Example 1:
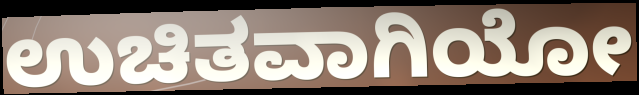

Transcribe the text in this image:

ಉಚಿತವಾಗಿಯೋ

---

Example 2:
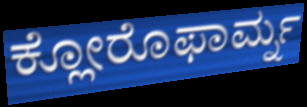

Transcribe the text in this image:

ಕ್ಲೋರೊಫಾರ್ಮ್ನ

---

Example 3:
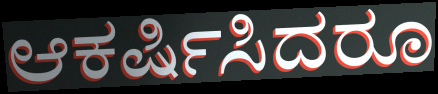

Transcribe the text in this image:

ಆಕರ್ಷಿಸಿದರೂ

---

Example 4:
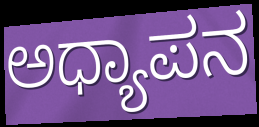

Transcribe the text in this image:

ಅಧ್ಯಾಪನ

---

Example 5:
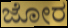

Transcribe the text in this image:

ಜೋರ